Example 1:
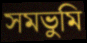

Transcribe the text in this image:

সমভুমি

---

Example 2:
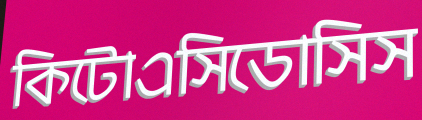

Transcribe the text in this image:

কিটোএসিডোসিস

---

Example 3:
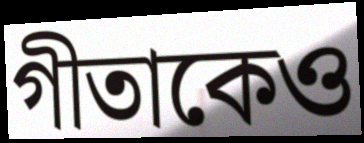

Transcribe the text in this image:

গীতাকেও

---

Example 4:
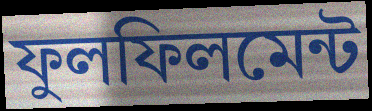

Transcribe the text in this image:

ফুলফিলমেন্ট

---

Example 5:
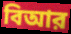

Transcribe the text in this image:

বিআর